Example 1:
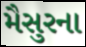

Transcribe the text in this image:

મૈસુરના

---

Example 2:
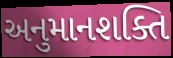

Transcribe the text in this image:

અનુમાનશક્તિ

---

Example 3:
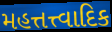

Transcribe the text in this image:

મહત્તત્ત્વાદિક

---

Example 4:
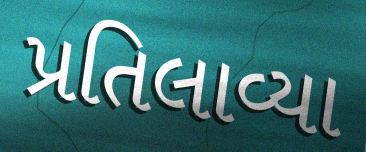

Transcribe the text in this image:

પ્રતિલાવ્યા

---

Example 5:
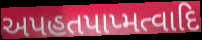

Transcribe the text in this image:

અપહતપાપ્મત્વાદિ